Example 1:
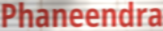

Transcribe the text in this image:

Phaneendra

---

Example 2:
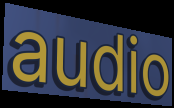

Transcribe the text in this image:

audio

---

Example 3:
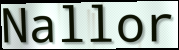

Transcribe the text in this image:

Nallor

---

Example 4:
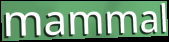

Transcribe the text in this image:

mammal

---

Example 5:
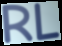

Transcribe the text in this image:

RL